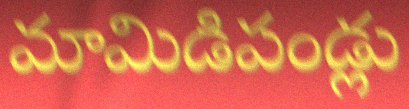
మామిడిపండ్లు